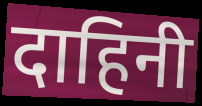
दाहिनी